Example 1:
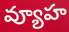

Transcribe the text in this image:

వ్యూహ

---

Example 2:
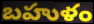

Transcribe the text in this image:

బహుళం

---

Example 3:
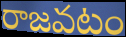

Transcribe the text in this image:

రాజవటం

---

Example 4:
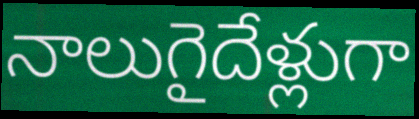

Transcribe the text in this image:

నాలుగైదేళ్లుగా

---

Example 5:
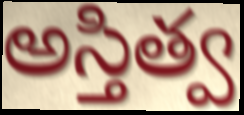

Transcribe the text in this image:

అస్తిత్వ